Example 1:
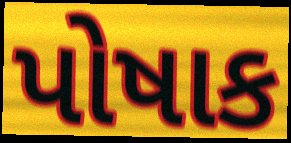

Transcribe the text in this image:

પોષાક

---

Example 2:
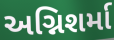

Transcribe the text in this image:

અગ્નિશર્મા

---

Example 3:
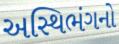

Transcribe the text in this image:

અસ્થિભંગનો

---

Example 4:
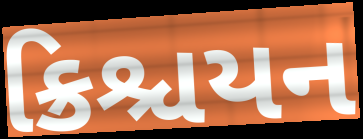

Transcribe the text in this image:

ક્રિશ્ચયન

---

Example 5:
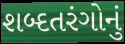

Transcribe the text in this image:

શબ્દતરંગોનું